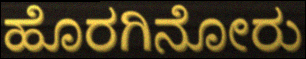
ಹೊರಗಿನೋರು